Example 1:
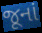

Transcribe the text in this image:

જૂનાં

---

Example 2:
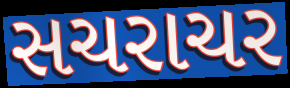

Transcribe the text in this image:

સચરાચર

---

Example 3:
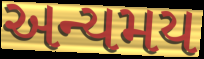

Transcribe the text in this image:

અન્યમય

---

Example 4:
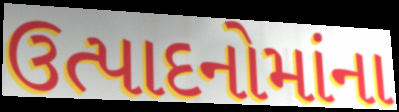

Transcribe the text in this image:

ઉત્પાદનોમાંના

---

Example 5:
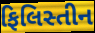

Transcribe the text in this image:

ફિલિસ્તીન